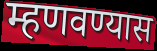
म्हणवण्यास